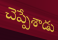
చెప్పేశాడు